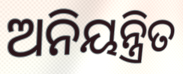
ଅନିୟନ୍ତ୍ରିତ